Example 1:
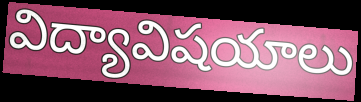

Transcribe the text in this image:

విద్యావిషయాలు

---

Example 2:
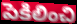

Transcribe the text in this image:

పెకిలించి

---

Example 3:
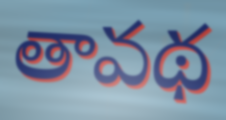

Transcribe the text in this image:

తావథ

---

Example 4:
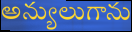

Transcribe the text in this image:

అన్యులుగాను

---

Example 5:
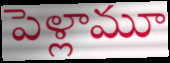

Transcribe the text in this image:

పెళ్లామూ